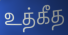
உத்கீத